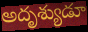
అదృశ్యుడూ